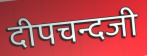
दीपचन्दजी